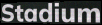
Stadium